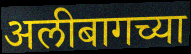
अलीबागच्या